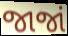
જાજાં